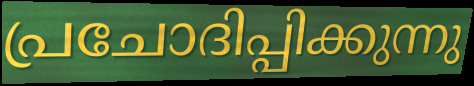
പ്രചോദിപ്പിക്കുന്നു